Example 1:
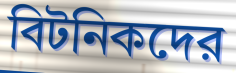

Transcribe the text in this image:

বিটনিকদের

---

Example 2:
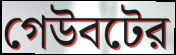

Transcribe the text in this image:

গেউবটের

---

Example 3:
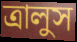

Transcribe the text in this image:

ত্রালুস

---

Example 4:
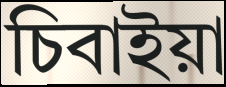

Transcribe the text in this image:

চিবাইয়া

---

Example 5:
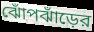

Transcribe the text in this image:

ঝোঁপঝাঁড়ের